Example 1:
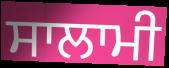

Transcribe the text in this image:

ਸਾਲਾਮੀ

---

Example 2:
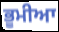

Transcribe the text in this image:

ਭੂਮੀਆ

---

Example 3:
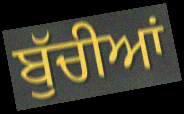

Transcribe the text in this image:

ਬੁੱਚੀਆਂ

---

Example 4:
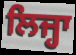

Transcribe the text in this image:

ਲਿਜ੍ਹਾ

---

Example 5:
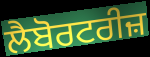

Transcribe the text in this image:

ਲੈਬੋਰਟਰੀਜ਼